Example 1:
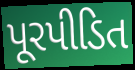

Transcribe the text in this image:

પૂરપીડિત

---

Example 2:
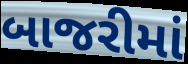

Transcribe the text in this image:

બાજરીમાં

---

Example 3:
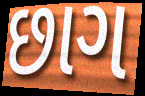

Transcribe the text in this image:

છાગ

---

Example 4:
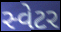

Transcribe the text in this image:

સ્વેટર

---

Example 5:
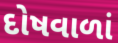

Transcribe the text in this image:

દોષવાળાં